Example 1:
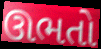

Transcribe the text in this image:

ઊભતો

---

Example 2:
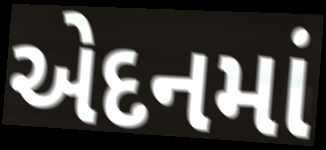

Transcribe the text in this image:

એદનમાં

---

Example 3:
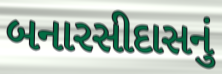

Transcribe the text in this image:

બનારસીદાસનું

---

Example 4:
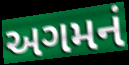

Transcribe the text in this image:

અગમનં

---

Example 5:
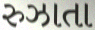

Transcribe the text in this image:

રુઝાતા